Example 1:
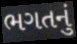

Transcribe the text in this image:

ભગતનું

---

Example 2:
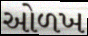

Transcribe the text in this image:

ઓળખ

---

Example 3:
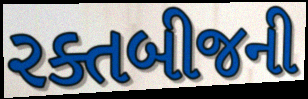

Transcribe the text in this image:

રક્તબીજની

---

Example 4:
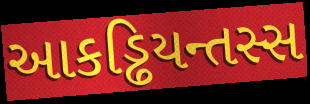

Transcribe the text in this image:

આકડ્ઢિયન્તસ્સ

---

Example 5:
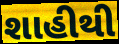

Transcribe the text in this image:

શાહીથી